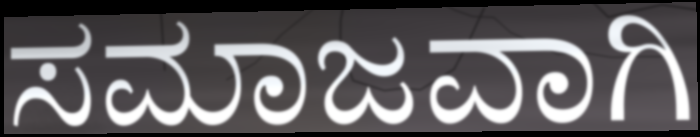
ಸಮಾಜವಾಗಿ